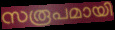
സരൂപമായി